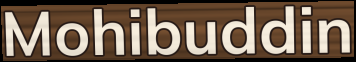
Mohibuddin